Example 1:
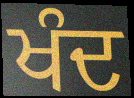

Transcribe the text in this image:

ਖੰਦ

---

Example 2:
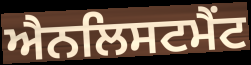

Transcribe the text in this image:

ਐਨਲਿਸਟਮੈਂਟ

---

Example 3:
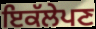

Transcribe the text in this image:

ਇਕੱਲੇਪਣ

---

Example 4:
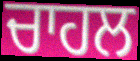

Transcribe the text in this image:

ਚਾਹਲ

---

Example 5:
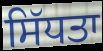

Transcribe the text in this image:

ਸਿੱਧਤਾ